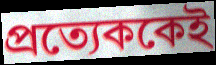
প্রত্যেককেই